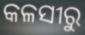
କଳସୀରୁ